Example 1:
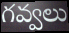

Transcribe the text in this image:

గవ్వలు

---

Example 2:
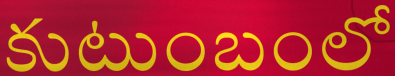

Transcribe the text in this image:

కుటుంబంలో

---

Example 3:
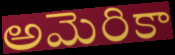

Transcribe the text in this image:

అమెరికా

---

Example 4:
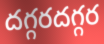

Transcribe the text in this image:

దగ్గరదగ్గర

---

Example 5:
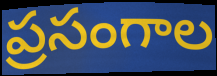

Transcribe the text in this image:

ప్రసంగాల